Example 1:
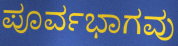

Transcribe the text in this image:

ಪೂರ್ವಭಾಗವು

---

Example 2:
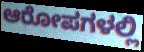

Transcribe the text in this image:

ಆರೋಪಗಳಲ್ಲಿ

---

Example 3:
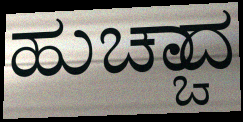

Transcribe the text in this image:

ಹುಚ್ಚಾದ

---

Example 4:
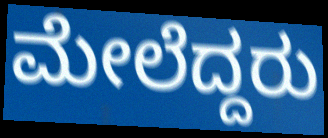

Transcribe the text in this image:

ಮೇಲೆದ್ದರು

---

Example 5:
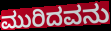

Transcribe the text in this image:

ಮುರಿದವನು